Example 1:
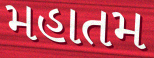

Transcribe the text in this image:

મહાતમ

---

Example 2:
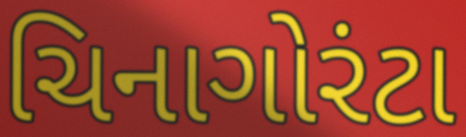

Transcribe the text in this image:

ચિનાગોરંટા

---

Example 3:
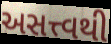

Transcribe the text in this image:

અસત્ત્વથી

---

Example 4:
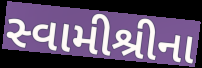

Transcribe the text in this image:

સ્વામીશ્રીના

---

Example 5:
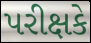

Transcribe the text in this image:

પરીક્ષકે